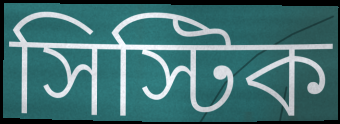
সিস্টিক